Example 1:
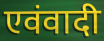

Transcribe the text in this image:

एवंवादी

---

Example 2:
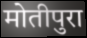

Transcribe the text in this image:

मोतीपुरा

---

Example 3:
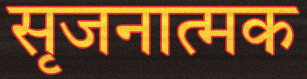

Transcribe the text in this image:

सृजनात्मक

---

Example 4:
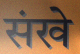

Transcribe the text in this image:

संखे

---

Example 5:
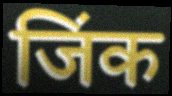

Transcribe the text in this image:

जिंक